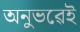
অনুভৱেই